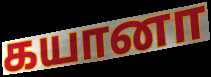
கயானா